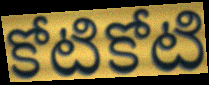
కోటికోటి